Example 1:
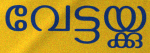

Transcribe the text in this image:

വേട്ടയ്ക്കു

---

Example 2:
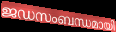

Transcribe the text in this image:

ജഡസംബന്ധമായി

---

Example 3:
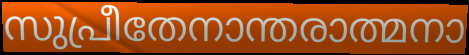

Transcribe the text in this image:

സുപ്രീതേനാന്തരാത്മനാ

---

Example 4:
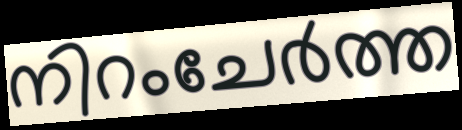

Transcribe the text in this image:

നിറംചേർത്ത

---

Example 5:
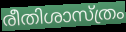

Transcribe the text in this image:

രീതിശാസ്ത്രം